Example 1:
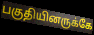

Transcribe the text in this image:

பகுதியினருக்கே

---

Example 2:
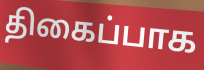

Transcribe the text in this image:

திகைப்பாக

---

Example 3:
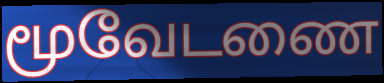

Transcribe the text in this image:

மூவேடணை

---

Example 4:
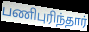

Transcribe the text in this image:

பணிபுரிந்தார்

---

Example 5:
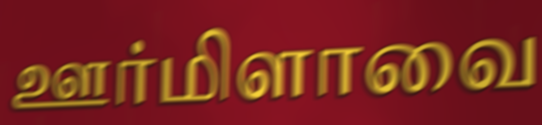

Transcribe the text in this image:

ஊர்மிளாவை